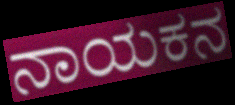
ನಾಯಕನ